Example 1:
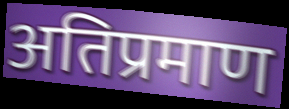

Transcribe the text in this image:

अतिप्रमाण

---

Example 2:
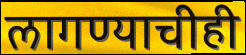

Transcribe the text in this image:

लागण्याचीही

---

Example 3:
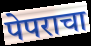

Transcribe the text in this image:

पेपराचा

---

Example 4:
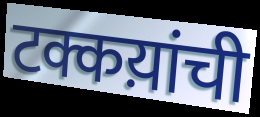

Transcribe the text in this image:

टक्कय़ांची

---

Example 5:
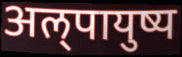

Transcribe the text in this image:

अल्पायुष्य